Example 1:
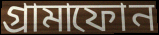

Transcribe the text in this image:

গ্রামাফোন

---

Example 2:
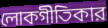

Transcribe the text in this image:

লোকগীতিকার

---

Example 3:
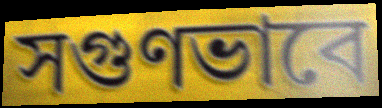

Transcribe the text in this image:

সগুণভাবে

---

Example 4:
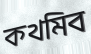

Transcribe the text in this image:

কথমিব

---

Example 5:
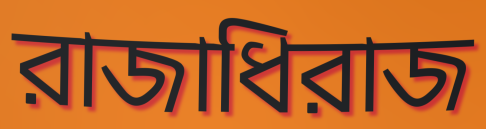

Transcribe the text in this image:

রাজাধিরাজ